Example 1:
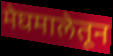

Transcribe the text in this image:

मेघमालेतून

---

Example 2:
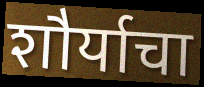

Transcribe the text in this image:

शौर्याचा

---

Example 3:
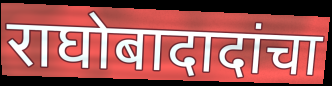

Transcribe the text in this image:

राघोबादादांचा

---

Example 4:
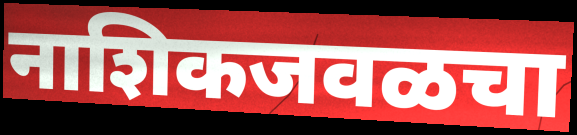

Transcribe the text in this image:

नाशिकजवळचा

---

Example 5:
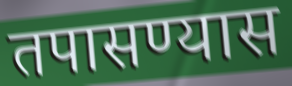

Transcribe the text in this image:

तपासण्यास